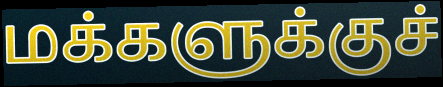
மக்களுக்குச்